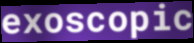
exoscopic